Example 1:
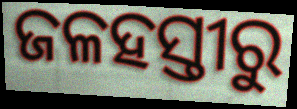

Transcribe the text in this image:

ଜଳହସ୍ତୀରୁ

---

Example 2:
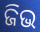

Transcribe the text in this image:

ଜିଭ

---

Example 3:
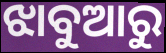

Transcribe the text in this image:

ଝାବୁଆରୁ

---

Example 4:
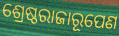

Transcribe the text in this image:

ଶ୍ରେଷ୍ଠରାଜାରୂପେଣ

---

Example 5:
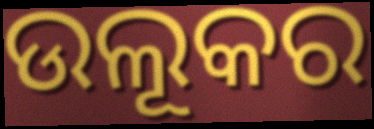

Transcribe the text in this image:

ଉଲୂକର